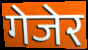
गेजेर